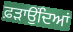
ਫ਼ੜਾਉਂਦਿਆਂ